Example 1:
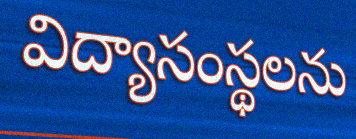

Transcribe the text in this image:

విద్యాసంస్థలను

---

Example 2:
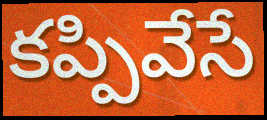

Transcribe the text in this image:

కప్పివేసే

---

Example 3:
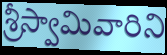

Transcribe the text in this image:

శ్రీస్వామివారిని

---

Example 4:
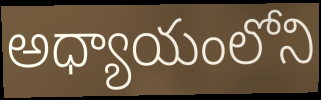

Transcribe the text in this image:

అధ్యాయంలోని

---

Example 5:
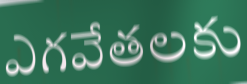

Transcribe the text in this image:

ఎగవేతలకు